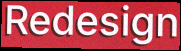
Redesign